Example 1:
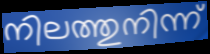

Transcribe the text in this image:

നിലത്തുനിന്ന്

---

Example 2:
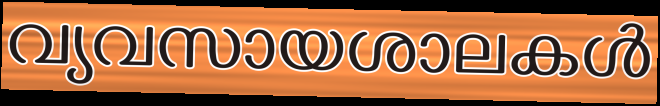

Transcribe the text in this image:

വ്യവസായശാലകൾ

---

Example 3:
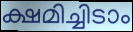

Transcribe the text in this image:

ക്ഷമിച്ചിടാം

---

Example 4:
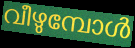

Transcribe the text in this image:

വീഴുമ്പോൾ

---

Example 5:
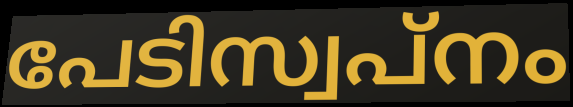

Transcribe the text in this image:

പേടിസ്വപ്നം